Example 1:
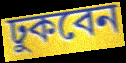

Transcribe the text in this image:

ঢুকবেন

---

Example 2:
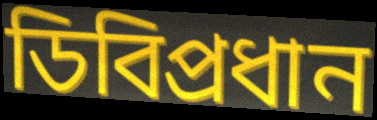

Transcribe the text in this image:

ডিবিপ্রধান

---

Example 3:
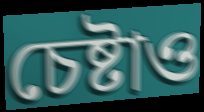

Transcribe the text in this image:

চেষ্টাও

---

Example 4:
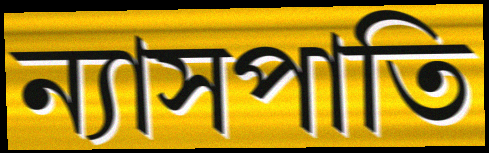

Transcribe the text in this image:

ন্যাসপাতি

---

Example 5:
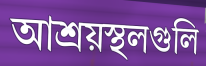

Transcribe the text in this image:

আশ্রয়স্থলগুলি